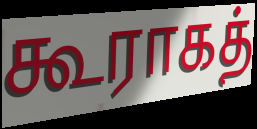
கூராகத்